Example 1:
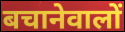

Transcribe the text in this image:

बचानेवालों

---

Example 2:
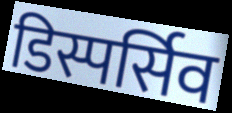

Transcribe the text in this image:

डिस्पर्सिव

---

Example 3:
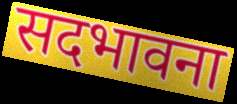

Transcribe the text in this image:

सदभावना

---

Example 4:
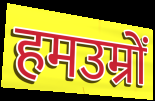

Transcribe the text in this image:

हमउम्रों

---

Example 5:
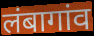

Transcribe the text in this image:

लंबागांव